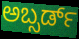
ಅಬ್ಸರ್ಡ್